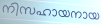
നിസഹായനായ